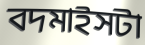
বদমাইসটা